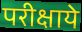
परीक्षाये